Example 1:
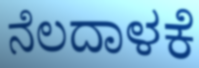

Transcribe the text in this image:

ನೆಲದಾಳಕೆ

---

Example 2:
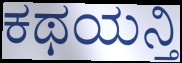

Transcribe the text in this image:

ಕಥಯನ್ತಿ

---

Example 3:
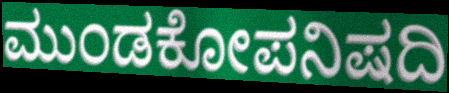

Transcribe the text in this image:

ಮುಂಡಕೋಪನಿಷದಿ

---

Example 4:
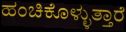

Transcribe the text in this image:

ಹಂಚಿಕೊಳ್ಳುತ್ತಾರೆ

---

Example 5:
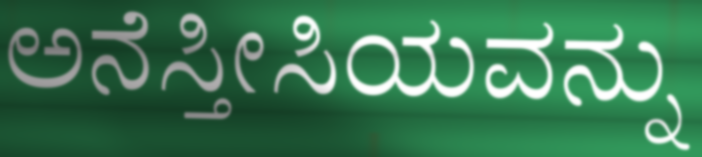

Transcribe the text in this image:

ಅನೆಸ್ತೀಸಿಯವನ್ನು